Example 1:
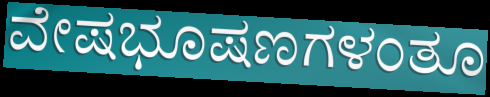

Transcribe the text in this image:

ವೇಷಭೂಷಣಗಳಂತೂ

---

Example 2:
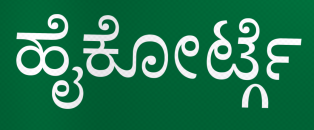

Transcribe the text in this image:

ಹೈಕೋರ್ಟ್ಗೆ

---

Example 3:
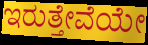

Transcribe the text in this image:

ಇರುತ್ತೇವೆಯೇ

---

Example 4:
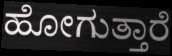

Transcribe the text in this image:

ಹೋಗುತ್ತಾರೆ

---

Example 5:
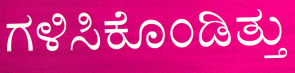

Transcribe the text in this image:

ಗಳಿಸಿಕೊಂಡಿತ್ತು